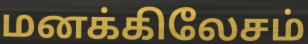
மனக்கிலேசம்